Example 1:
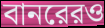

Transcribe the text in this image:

বানরেরও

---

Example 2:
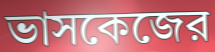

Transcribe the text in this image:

ভাসকেজের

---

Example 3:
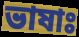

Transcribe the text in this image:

ভাষাঃ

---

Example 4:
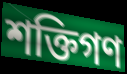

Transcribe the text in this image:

শক্তিগণ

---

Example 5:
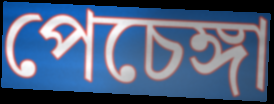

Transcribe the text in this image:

পেচেঙ্গা